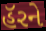
હૅરને